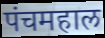
पंचमहाल